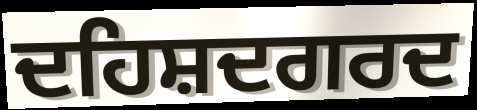
ਦਹਿਸ਼ਦਗਰਦ